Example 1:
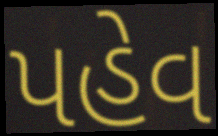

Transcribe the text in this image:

પહેવ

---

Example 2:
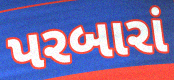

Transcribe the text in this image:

પરબારાં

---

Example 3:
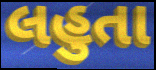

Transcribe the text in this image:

લહુતા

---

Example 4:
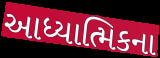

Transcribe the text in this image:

આધ્યાત્મિકના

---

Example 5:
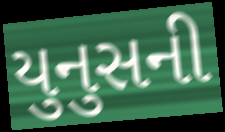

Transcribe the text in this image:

યુનુસની